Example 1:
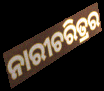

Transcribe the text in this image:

ନାରୀଚରିତ୍ରର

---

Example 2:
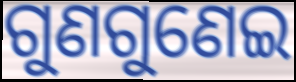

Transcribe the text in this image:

ଗୁଣଗୁଣେଇ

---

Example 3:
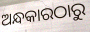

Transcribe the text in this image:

ଅନ୍ଧକାରଠାରୁ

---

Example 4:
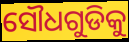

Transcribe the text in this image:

ସୌଧଗୁଡିକୁ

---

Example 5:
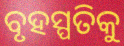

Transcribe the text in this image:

ବୃହସ୍ପତିକୁ